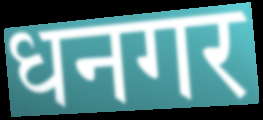
धनगर